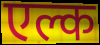
एल्क